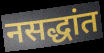
नसद्धांत